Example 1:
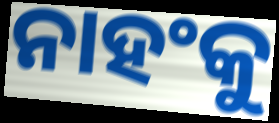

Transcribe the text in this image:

ନାହଂକୁ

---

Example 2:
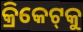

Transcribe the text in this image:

କ୍ରିକେଟ୍‌କୁ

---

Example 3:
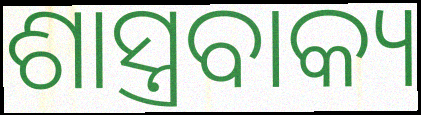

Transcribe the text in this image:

ଶାସ୍ତ୍ରବାକ୍ୟ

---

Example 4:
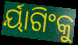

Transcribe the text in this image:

ର୍ୟାଗିଂକୁ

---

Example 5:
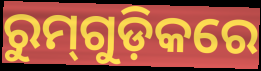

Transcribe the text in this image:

ରୁମ୍‌ଗୁଡ଼ିକରେ